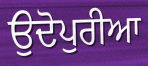
ਉਦੋਪੁਰੀਆ